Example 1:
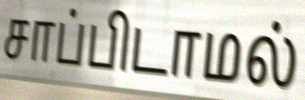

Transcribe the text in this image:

சாப்பிடாமல்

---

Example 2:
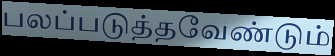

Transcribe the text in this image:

பலப்படுத்தவேண்டும்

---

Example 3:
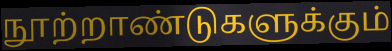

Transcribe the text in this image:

நூற்றாண்டுகளுக்கும்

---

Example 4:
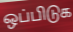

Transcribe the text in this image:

ஒப்பிடுக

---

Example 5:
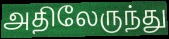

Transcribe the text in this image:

அதிலேருந்து